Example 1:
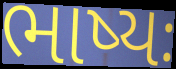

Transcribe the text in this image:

ભાષ્યઃ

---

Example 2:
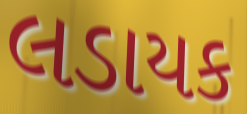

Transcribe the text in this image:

લડાયક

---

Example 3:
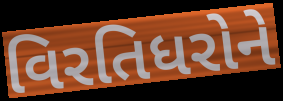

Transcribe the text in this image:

વિરતિધરોને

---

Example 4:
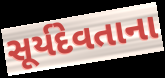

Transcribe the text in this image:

સૂર્યદેવતાના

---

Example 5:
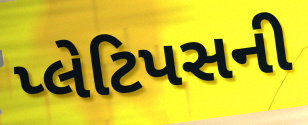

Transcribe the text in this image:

પ્લેટિપસની